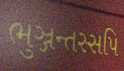
ભુઞ્જન્તસ્સપિ